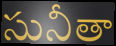
సునీతా